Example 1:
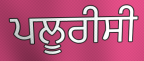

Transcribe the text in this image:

ਪਲੂਰੀਸੀ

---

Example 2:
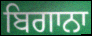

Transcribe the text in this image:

ਬਿਗਾਨਾ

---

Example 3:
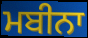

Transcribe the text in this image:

ਮਬੀਨਾ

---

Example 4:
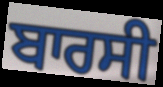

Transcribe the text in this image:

ਬਾਰਸੀ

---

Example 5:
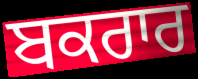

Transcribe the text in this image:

ਬਕਰਾਰ